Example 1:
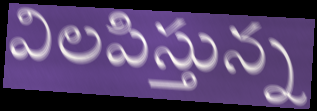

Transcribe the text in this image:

విలపిస్తున్న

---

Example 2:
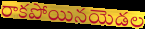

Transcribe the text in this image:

రాకపోయినయెడల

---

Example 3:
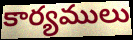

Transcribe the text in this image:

కార్యములు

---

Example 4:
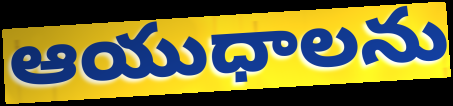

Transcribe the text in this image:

ఆయుధాలను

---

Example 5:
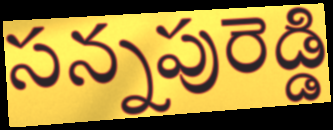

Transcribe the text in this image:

సన్నపురెడ్డి